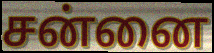
சன்னை